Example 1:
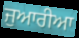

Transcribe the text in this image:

ਜੁਆਰੀਆ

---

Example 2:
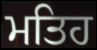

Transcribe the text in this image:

ਮਤਿਹ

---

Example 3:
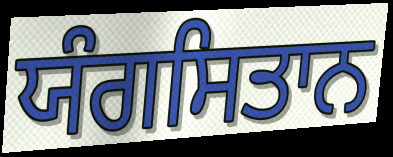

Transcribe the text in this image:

ਯੰਗਸਿਤਾਨ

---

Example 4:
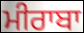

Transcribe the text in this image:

ਮੀਰਾਬਾ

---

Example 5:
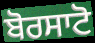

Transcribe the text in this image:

ਬੋਰਸਾਟੋ